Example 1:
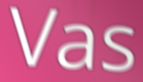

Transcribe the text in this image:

Vas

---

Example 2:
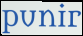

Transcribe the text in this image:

punir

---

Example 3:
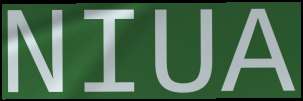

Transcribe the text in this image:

NIUA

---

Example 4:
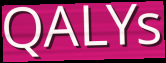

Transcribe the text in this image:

QALYs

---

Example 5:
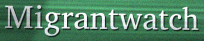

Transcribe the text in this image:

Migrantwatch